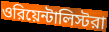
ওরিয়েন্টালিস্টরা